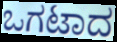
ಒಗಟಾದ